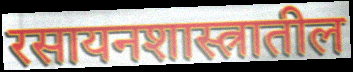
रसायनशास्त्रातील